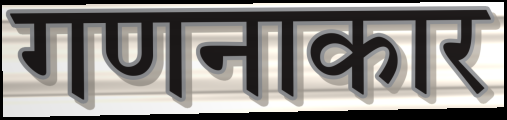
गणनाकार